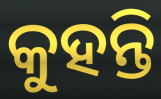
କୁହନ୍ତି